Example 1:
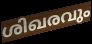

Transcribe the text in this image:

ശിഖരവും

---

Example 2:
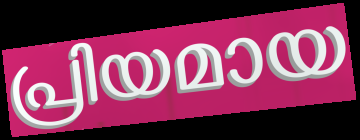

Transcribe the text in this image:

പ്രിയമായ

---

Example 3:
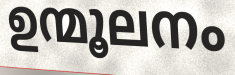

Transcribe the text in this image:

ഉന്മൂലനം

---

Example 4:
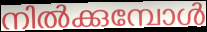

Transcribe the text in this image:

നിൽക്കുമ്പോൾ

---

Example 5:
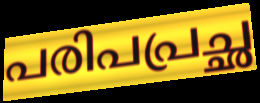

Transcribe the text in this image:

പരിപപ്രച്ഛ